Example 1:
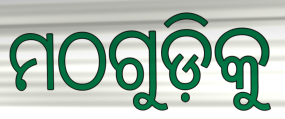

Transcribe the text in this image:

ମଠଗୁଡ଼ିକୁ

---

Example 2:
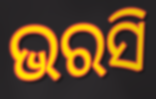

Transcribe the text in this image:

ଭରସି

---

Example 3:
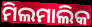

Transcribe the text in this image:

ମିଲମାଲିକ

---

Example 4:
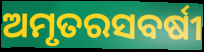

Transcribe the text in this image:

ଅମୃତରସବର୍ଷୀ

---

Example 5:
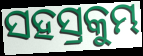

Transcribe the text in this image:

ସହସ୍ରକୁମ୍ଭ